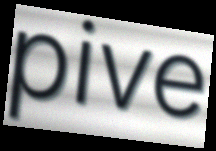
pive